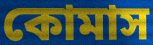
কোমাস